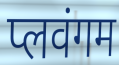
प्लवंगम